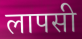
लापसी